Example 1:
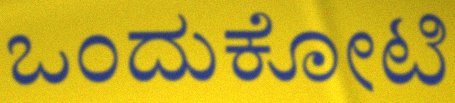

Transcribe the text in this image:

ಒಂದುಕೋಟಿ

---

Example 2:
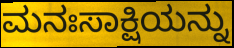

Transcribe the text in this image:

ಮನಃಸಾಕ್ಷಿಯನ್ನು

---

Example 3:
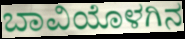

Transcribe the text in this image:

ಬಾವಿಯೊಳಗಿನ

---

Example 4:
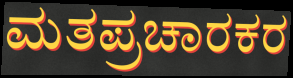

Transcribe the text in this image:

ಮತಪ್ರಚಾರಕರ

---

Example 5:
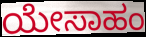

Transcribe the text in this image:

ಯೇಸಾಹಂ